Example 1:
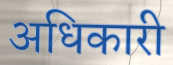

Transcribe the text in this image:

अधिकारी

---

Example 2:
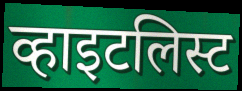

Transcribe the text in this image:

व्हाइटलिस्ट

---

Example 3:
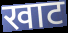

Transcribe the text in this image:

खाट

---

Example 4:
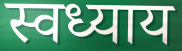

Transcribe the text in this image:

स्वध्याय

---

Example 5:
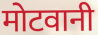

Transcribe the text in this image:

मोटवानी